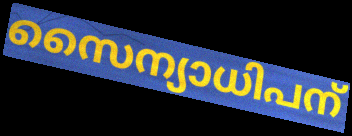
സൈന്യാധിപന്